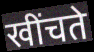
खींचते